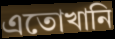
এতোখানি